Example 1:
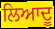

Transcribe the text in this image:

ਲਿਆਦੂ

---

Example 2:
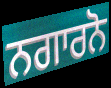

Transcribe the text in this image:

ਨਗਾਰਨੋ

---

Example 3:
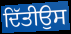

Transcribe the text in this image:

ਦਿੱਤੀਉਸ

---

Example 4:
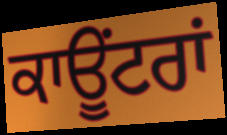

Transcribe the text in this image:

ਕਾਊਂਟਰਾਂ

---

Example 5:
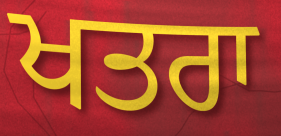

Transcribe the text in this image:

ਖਤਰਾ